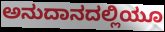
ಅನುದಾನದಲ್ಲಿಯೂ